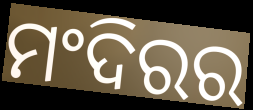
ମଂଦିରର